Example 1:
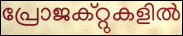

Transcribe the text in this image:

പ്രോജക്റ്റുകളിൽ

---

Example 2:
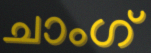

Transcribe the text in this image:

ചാംഗ്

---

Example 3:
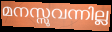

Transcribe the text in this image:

മനസ്സുവന്നില്ല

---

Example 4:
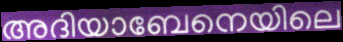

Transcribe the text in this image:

അദിയാബേനെയിലെ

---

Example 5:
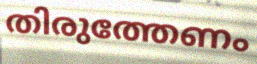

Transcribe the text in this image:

തിരുത്തേണം